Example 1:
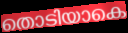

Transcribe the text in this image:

തൊടിയാകെ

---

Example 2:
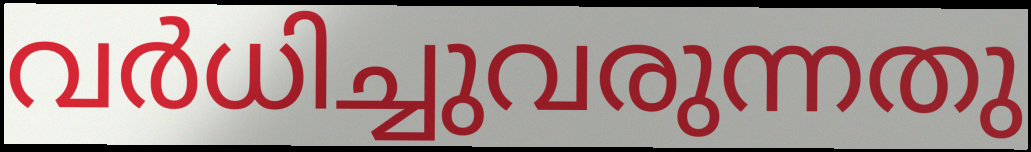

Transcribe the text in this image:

വർധിച്ചുവരുന്നതു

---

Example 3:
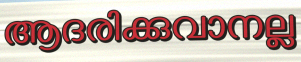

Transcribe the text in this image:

ആദരിക്കുവാനല്ല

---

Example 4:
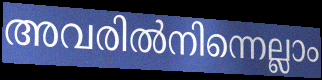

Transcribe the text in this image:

അവരിൽനിന്നെല്ലാം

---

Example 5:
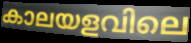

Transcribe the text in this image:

കാലയളവിലെ